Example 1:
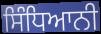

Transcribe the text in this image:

ਸਿੰਧਿਆਨੀ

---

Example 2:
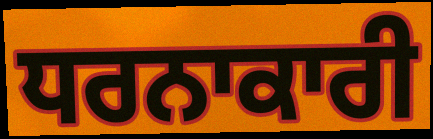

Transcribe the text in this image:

ਧਰਨਾਕਾਰੀ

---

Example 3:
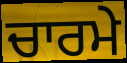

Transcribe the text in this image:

ਚਾਰਮੇ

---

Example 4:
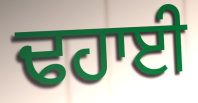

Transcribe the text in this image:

ਢਹਾਈ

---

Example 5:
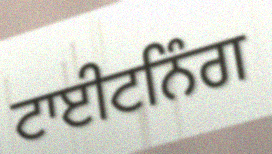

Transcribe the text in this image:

ਟਾਈਟਨਿੰਗ